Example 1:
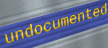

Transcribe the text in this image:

undocumented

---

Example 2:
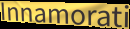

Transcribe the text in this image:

Innamorati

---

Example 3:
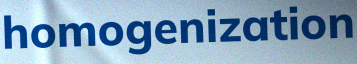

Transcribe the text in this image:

homogenization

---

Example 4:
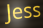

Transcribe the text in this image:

Jess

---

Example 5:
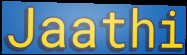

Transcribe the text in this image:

Jaathi